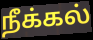
நீக்கல்